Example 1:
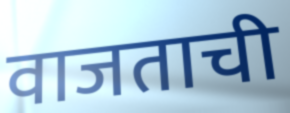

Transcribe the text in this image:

वाजताची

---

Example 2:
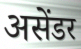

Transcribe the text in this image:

असेंडर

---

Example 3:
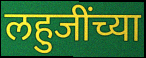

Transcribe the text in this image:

लहुजींच्या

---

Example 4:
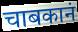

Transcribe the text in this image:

चाबकानं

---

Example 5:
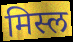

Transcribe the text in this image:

मिस्ल